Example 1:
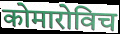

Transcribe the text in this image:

कोमारोविच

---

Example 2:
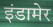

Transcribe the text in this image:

इंडामेर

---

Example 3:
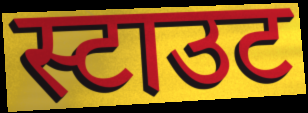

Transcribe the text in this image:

स्टाउट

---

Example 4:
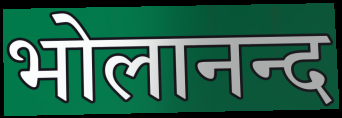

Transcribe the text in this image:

भोलानन्द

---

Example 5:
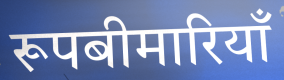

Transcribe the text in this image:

रूपबीमारियाँ